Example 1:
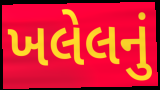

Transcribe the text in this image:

ખલેલનું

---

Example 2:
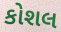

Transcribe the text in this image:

કોશલ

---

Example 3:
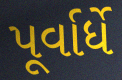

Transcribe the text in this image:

પૂર્વાર્ધે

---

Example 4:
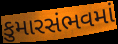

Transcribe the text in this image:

કુમારસંભવમાં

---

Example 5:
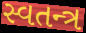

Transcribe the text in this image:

સ્વતન્ત્ર